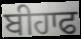
ਬੀਹਾਫ